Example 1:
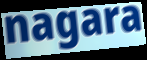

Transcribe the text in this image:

nagara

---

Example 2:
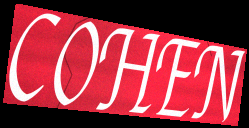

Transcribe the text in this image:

COHEN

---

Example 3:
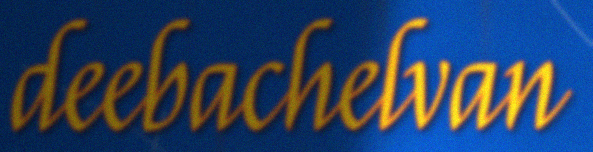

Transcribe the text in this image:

deebachelvan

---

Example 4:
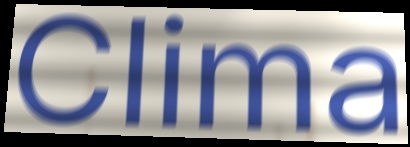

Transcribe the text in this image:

Clima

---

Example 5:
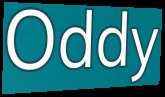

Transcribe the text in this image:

Oddy